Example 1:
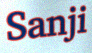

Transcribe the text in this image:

Sanji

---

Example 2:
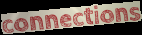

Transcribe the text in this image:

connections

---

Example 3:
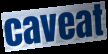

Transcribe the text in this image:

caveat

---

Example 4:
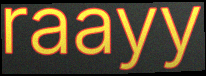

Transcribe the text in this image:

raayy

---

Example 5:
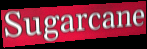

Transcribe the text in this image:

Sugarcane